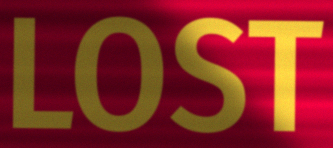
LOST